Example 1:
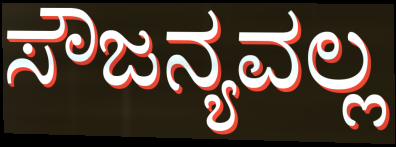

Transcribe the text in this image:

ಸೌಜನ್ಯವಲ್ಲ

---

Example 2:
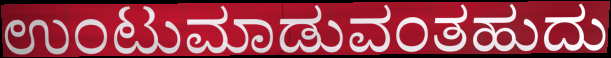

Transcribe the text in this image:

ಉಂಟುಮಾಡುವಂತಹುದು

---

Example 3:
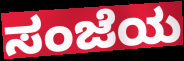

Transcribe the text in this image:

ಸಂಜೆಯ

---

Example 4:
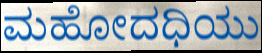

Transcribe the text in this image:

ಮಹೋದಧಿಯು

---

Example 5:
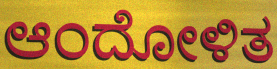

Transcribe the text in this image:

ಆಂದೋಳಿತ